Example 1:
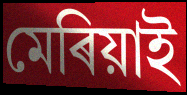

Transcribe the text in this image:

মেৰিয়াই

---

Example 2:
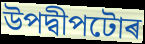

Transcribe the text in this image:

উপদ্বীপটোৰ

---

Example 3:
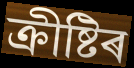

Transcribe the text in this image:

ক্ৰীষ্টিৰ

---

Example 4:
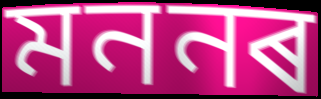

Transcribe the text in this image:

মননৰ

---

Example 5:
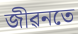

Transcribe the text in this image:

জীৱনতে